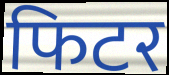
फिटर